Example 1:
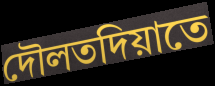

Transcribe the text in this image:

দৌলতদিয়াতে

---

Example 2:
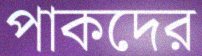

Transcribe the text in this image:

পাকদের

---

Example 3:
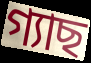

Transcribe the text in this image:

গ্যাছ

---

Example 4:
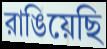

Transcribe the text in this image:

রাঙিয়েছি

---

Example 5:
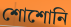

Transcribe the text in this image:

শোশোনি